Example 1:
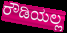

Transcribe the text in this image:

ರೌಡಿಯಲ್ಲ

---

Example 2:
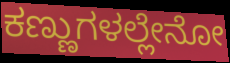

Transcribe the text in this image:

ಕಣ್ಣುಗಳಲ್ಲೇನೋ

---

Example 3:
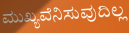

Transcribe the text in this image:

ಮುಖ್ಯವೆನಿಸುವುದಿಲ್ಲ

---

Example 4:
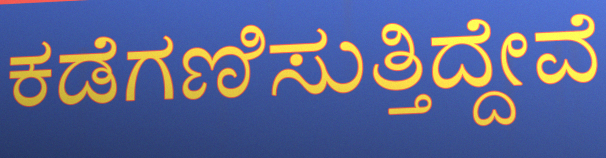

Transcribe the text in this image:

ಕಡೆಗಣಿಸುತ್ತಿದ್ದೇವೆ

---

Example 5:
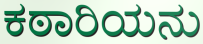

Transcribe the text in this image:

ಕಠಾರಿಯನು